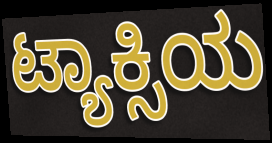
ಟ್ಯಾಕ್ಸಿಯ